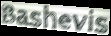
Bashevis